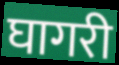
घागरी